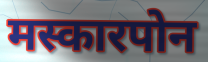
मस्कारपोन